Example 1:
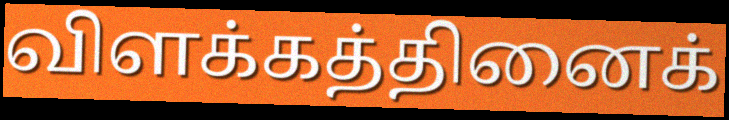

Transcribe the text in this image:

விளக்கத்தினைக்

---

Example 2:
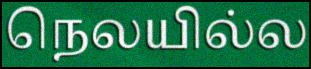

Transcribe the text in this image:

நெலயில்ல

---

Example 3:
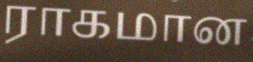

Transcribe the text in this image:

ராகமான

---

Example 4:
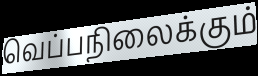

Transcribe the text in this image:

வெப்பநிலைக்கும்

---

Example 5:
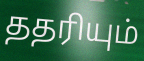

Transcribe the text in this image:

ததரியும்